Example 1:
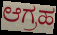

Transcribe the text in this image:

ಆಗ್ರಹ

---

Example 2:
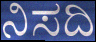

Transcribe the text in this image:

ನಿಸದಿ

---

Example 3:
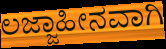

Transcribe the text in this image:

ಲಜ್ಜಾಹೀನವಾಗಿ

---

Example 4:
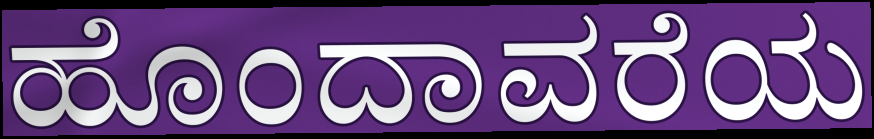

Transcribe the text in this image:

ಹೊಂದಾವರೆಯ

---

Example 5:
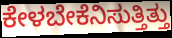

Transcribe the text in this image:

ಕೇಳಬೇಕೆನಿಸುತ್ತಿತ್ತು